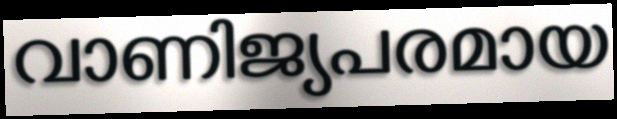
വാണിജ്യപരമായ